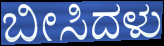
ಬೀಸಿದಳು